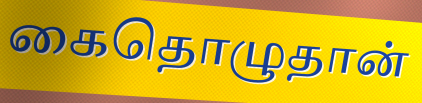
கைதொழுதான்